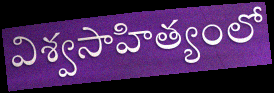
విశ్వసాహిత్యంలో